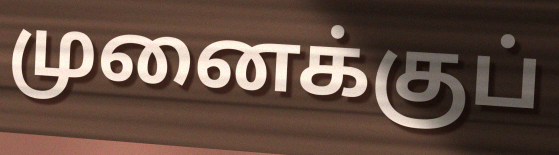
முனைக்குப்